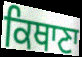
ਕਿਥਾਣਾ